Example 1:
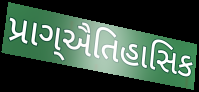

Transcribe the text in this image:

પ્રાગ્ઐતિહાસિક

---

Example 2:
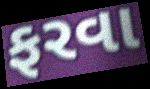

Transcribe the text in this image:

ફરવા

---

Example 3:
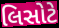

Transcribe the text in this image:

લિસોટે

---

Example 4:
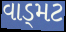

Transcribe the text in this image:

વાડ્મટ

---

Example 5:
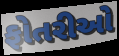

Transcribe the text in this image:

ફોતરીઓ